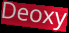
Deoxy